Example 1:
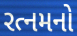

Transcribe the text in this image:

રત્નમનો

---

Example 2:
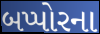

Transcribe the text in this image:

બપ્પોરના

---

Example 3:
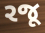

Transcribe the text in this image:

રજૂ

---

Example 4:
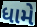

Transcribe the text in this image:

ધામે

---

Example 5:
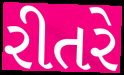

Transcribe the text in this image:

રીતરે